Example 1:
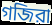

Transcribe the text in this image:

গজিরা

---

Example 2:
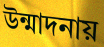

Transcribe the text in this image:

উন্মাদনায়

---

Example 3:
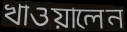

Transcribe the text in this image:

খাওয়ালেন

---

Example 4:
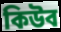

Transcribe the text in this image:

কিউব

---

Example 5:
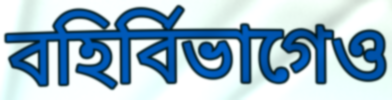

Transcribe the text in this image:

বহির্বিভাগেও